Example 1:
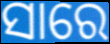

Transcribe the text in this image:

ସାରେ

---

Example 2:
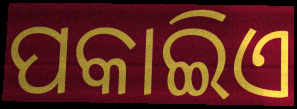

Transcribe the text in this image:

ପକାଇିଏ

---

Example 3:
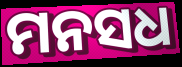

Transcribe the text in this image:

ମନସଧ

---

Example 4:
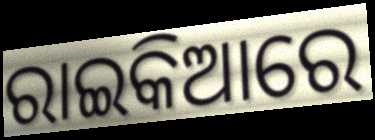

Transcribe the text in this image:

ରାଇକିଆରେ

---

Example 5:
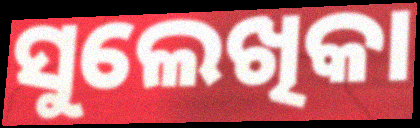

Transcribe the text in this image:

ସୁଲେଖିକା